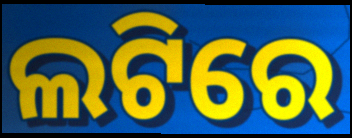
ଲଟିରେ